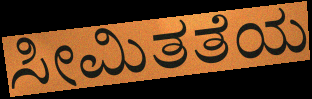
ಸೀಮಿತತೆಯ